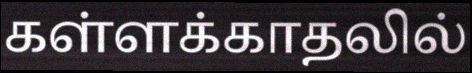
கள்ளக்காதலில்